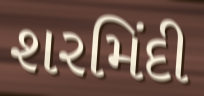
શરમિંદી